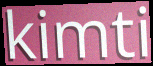
kimti